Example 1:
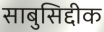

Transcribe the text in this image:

साबुसिद्दीक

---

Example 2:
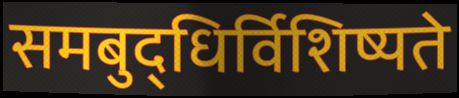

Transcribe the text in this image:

समबुद्धिर्विशिष्यते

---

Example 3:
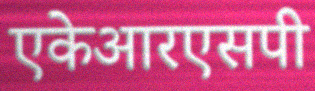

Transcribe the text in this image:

एकेआरएसपी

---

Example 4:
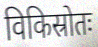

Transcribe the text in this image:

विकिस्रोतः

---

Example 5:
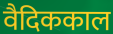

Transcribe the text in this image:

वैदिककाल